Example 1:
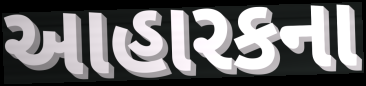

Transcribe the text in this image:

આહારકના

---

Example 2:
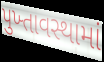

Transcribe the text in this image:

પુખ્તાવસ્થામાં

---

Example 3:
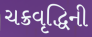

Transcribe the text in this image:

ચક્રવૃદ્ધિની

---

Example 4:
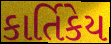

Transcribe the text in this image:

કાર્તિકેય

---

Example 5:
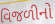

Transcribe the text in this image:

વિજળીનો